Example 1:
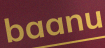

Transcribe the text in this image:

baanu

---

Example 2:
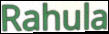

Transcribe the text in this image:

Rahula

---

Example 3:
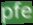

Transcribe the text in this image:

pfe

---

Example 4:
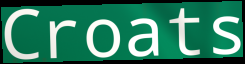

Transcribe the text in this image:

Croats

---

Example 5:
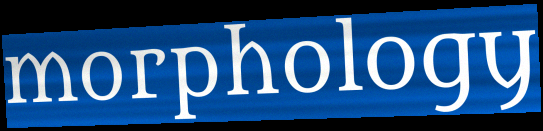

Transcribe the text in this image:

morphology